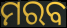
ମରବ